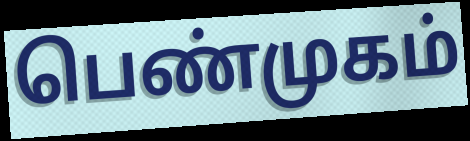
பெண்முகம்